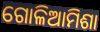
ଗୋଳିଆମିଶା